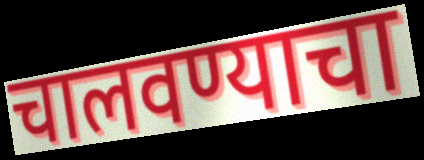
चालवण्याचा